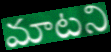
మాటని